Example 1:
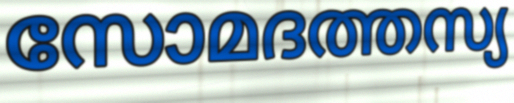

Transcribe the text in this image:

സോമദത്തസ്യ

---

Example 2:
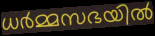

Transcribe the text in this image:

ധർമ്മസഭയിൽ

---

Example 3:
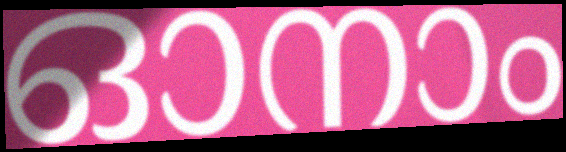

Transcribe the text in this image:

ഓനാം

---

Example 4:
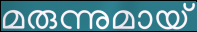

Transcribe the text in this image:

മരുന്നുമായ്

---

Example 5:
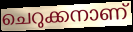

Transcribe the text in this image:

ചെറുക്കനാണ്